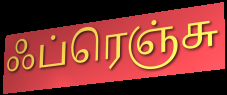
ஃப்ரெஞ்சு